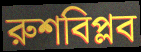
রুশবিপ্লব